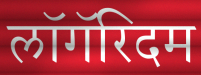
लॉगॅरिदम